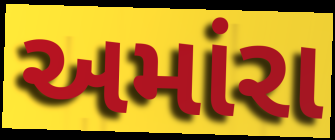
અમાંરા